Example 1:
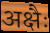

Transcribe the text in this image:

अक्षैः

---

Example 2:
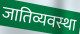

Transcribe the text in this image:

जातिव्यवस्था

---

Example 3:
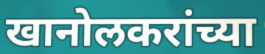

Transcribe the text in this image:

खानोलकरांच्या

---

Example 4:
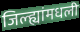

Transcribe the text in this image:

जिल्ह्यांमधली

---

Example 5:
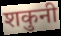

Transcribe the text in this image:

शकुनी